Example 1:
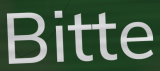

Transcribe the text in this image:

Bitte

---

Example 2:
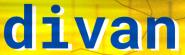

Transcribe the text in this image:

divan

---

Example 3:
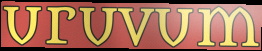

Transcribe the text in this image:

uruvum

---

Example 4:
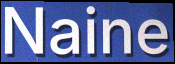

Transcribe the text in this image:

Naine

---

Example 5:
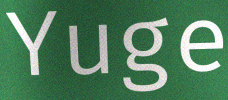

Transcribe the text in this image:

Yuge